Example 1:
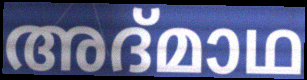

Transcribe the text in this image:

അദ്മാഥ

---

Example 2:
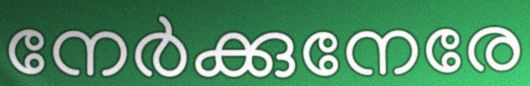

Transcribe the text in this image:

നേർക്കുനേരേ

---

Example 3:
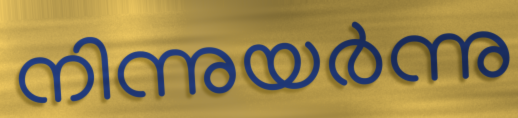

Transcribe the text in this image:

നിന്നുയർന്നു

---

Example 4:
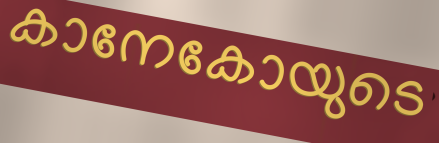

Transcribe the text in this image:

കാനേകോയുടെ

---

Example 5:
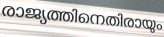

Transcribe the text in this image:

രാജ്യത്തിനെതിരായും